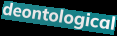
deontological